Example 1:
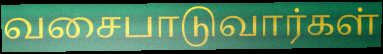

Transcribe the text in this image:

வசைபாடுவார்கள்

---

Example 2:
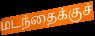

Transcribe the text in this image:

மடந்தைக்குச்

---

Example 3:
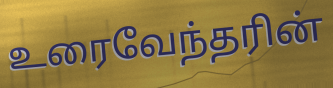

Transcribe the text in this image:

உரைவேந்தரின்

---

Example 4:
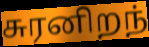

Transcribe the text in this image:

சுரனிறந்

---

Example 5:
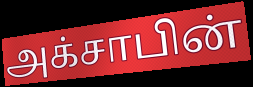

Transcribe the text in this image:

அக்சாபின்